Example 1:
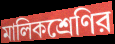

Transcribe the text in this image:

মালিকশ্রেণির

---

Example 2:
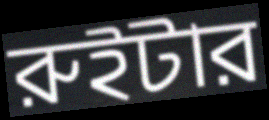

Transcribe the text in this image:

রুইটার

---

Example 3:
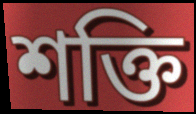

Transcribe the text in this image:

শক্তি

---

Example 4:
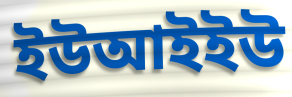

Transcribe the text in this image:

ইউআইইউ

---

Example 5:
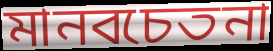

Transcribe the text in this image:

মানবচেতনা